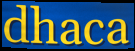
dhaca